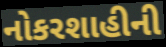
નોકરશાહીની